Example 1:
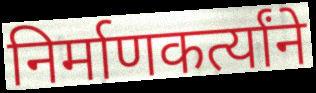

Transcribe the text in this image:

निर्माणकर्त्यांने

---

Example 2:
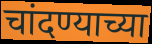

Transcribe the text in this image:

चांदण्याच्या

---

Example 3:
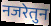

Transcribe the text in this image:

नजरेतुन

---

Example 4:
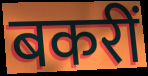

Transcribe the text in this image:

बकरीं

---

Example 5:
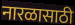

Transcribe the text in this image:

नारळासाठी